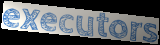
executors